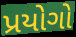
પ્રયોગો